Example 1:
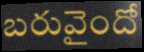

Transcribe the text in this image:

బరువైందో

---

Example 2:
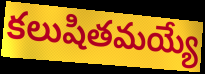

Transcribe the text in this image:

కలుషితమయ్యే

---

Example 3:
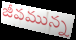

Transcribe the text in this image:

జీవమున్న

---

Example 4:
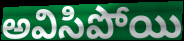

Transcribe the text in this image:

అవిసిపోయి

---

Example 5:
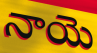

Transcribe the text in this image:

నాయె